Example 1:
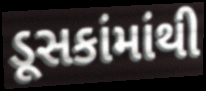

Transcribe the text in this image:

ડૂસકાંમાંથી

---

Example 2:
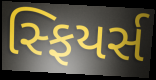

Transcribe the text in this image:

સ્ફિયર્સ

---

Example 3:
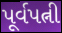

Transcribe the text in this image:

પૂર્વપત્ની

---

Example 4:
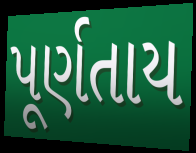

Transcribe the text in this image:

પૂર્ણતાય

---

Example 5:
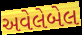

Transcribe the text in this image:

અવેલેબેલ